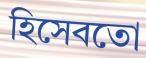
হিসেবতো